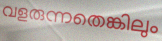
വളരുന്നതെങ്കിലും